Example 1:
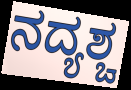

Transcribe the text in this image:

ನದ್ಯಶ್ಚ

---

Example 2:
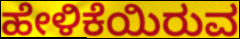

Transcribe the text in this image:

ಹೇಳಿಕೆಯಿರುವ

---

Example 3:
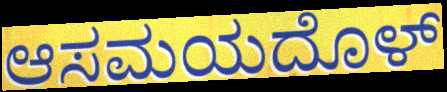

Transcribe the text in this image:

ಆಸಮಯದೊಳ್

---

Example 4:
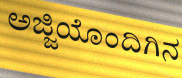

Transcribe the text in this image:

ಅಜ್ಜಿಯೊಂದಿಗಿನ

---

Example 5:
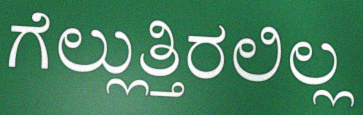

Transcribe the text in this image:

ಗೆಲ್ಲುತ್ತಿರಲಿಲ್ಲ